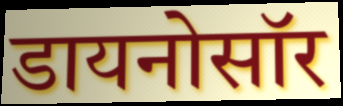
डायनोसॉर